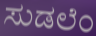
ಸುಡಲೆಂ